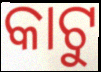
କାଟୁ